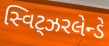
સ્વિટ્ઝરલેન્ડે